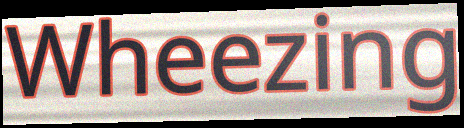
Wheezing